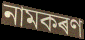
নামকৰণ